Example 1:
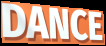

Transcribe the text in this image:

DANCE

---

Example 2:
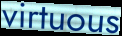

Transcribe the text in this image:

virtuous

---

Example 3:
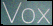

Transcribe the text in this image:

Vox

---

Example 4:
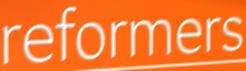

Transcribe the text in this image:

reformers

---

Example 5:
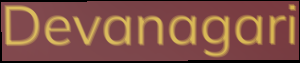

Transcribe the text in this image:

Devanagari